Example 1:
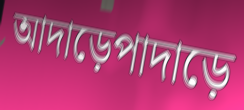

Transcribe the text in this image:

আদাড়েপাদাড়ে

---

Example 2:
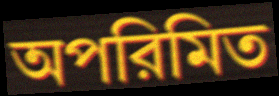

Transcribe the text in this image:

অপরিমিত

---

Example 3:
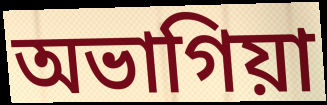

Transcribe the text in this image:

অভাগিয়া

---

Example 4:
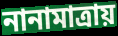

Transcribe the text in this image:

নানামাত্রায়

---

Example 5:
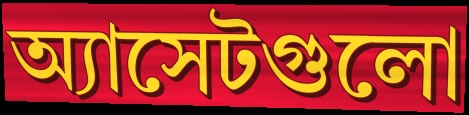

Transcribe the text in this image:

অ্যাসেটগুলো